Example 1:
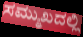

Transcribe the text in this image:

ಸಮ್ಮುಖದಲ್ಲಿ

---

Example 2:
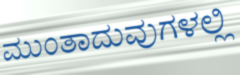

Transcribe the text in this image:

ಮುಂತಾದುವುಗಳಲ್ಲಿ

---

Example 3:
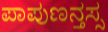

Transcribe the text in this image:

ಪಾಪುಣನ್ತಸ್ಸ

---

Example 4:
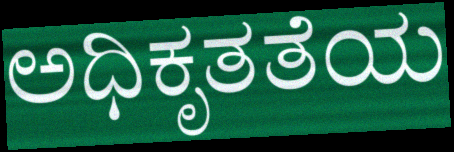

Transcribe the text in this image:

ಅಧಿಕೃತತೆಯ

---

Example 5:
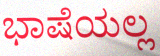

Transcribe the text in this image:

ಭಾಷೆಯಲ್ಲ